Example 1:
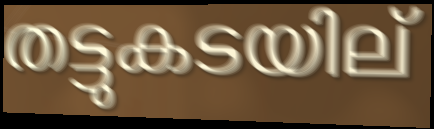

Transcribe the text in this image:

തട്ടുകടയില്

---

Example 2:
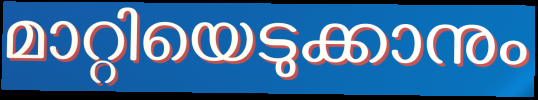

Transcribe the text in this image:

മാറ്റിയെടുക്കാനും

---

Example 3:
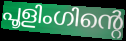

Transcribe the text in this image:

പൂളിംഗിന്റെ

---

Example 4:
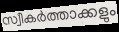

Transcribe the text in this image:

സ്വീകർത്താക്കളും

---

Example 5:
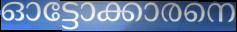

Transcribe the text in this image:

ഓട്ടോക്കാരനെ